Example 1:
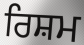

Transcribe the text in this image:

ਰਿਸ਼ਮ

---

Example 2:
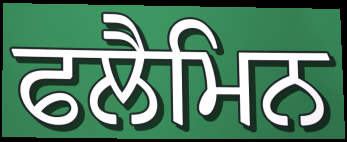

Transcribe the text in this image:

ਫਲੈਮਿਨ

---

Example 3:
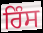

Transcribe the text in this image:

ਰਿੰਸ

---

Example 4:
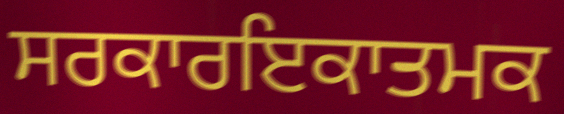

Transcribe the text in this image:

ਸਰਕਾਰਇਕਾਤਮਕ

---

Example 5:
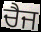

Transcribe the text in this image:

ਚੈਜ